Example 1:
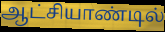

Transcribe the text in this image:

ஆட்சியாண்டில்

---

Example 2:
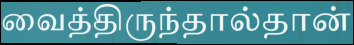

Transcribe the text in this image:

வைத்திருந்தால்தான்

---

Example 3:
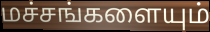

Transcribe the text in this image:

மச்சங்களையும்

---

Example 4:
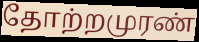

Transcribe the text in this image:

தோற்றமுரண்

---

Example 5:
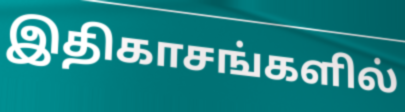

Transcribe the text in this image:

இதிகாசங்களில்